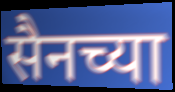
सैनच्या